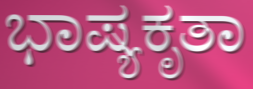
ಭಾಷ್ಯಕೃತಾ